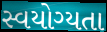
સ્વયોગ્યતા